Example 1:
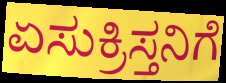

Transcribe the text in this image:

ಏಸುಕ್ರಿಸ್ತನಿಗೆ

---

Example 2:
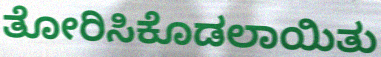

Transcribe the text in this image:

ತೋರಿಸಿಕೊಡಲಾಯಿತು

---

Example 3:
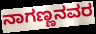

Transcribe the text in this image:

ನಾಗಣ್ಣನವರ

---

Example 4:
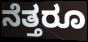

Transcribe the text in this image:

ನೆತ್ತರೂ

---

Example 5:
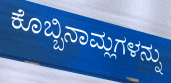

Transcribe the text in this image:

ಕೊಬ್ಬಿನಾಮ್ಲಗಳನ್ನು